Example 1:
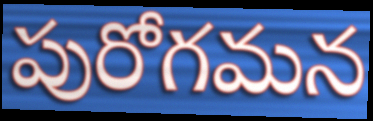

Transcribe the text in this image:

పురోగమన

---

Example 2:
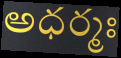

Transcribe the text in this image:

అధర్మః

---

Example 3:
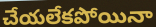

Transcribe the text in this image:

చేయలేకపోయినా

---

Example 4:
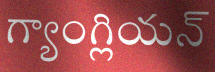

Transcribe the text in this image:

గ్యాంగ్లియన్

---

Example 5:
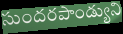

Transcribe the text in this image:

సుందరపాండ్యుని